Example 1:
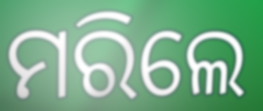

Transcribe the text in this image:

ମରିଲେ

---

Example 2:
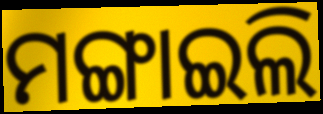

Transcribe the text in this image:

ମଙ୍ଗାଇଲି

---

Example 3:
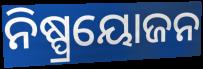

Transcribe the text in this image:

ନିଷ୍ପ୍ରୟୋଜନ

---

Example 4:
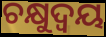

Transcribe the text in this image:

ଚକ୍ଷୁଦ୍ୱୟ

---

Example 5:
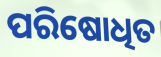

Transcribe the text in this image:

ପରିଷୋଧିତ